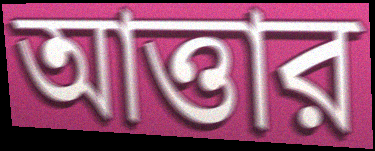
আত্তার